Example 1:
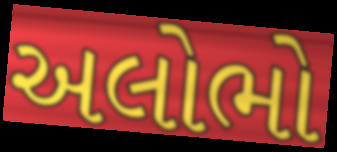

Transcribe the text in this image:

અલોભો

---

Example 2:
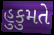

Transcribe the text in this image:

હુકુમતે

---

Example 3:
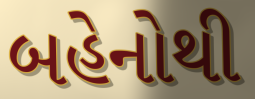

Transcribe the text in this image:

બહેનોથી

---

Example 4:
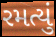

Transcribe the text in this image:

રમત્યું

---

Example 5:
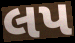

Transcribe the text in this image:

લપ